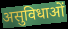
असुविधाओं